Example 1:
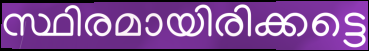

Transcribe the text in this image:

സ്ഥിരമായിരിക്കട്ടെ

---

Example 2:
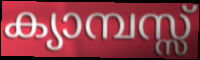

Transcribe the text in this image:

ക്യാമ്പസ്സ്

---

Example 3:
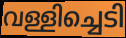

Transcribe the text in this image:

വള്ളിച്ചെടി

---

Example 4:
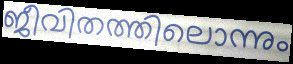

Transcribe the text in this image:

ജീവിതത്തിലൊന്നും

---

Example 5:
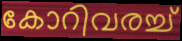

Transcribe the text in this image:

കോറിവരച്ച്